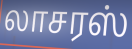
லாசரஸ்